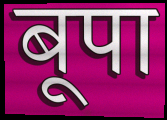
बूपा